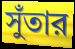
সুঁতার